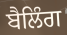
ਬੈਲਿੰਗ